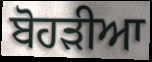
ਬੋਹੜੀਆ